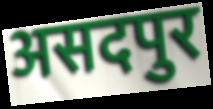
असदपुर